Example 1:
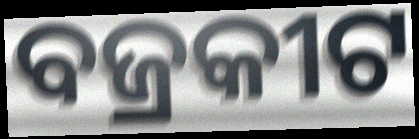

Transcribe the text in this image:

ବଜ୍ରକୀଟ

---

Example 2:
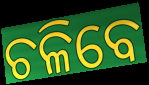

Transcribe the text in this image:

ଚଳିବେ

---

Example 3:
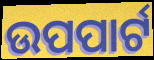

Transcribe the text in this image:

ଉପପାର୍ଟ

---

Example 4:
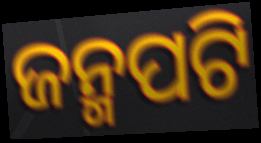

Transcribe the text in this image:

ଜନ୍ମପଟି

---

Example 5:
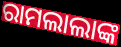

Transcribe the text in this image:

ରାମଲାଲାଙ୍କ